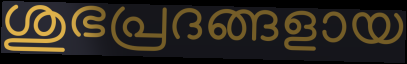
ശുഭപ്രദങ്ങളായ